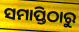
ସମାପ୍ତିଠାରୁ